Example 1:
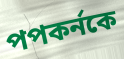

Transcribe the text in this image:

পপকর্নকে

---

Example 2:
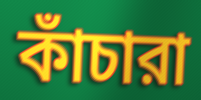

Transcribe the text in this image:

কাঁচারা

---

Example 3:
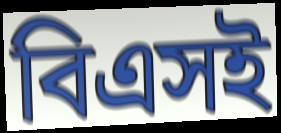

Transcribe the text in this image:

বিএসই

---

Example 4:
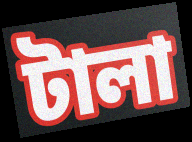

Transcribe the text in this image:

টালা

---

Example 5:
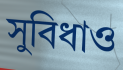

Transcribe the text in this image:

সুবিধাও